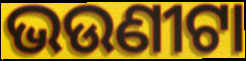
ଭଉଣୀଟା